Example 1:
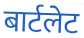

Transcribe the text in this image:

बार्टलेट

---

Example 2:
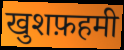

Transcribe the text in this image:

खुशफ़हमी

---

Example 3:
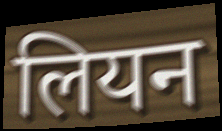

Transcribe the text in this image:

लियन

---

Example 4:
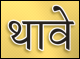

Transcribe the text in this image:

थावे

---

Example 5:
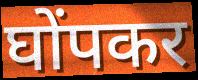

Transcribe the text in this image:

घोंपकर